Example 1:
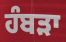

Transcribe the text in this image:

ਹੰਬੜਾ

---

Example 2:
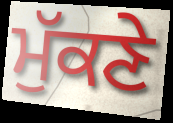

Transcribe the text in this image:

ਮੁੱਕਣੇ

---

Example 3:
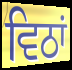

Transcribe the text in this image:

ਵਿਠਾਂ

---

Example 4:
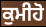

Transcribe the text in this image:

ਕੁਮੀਹੋ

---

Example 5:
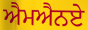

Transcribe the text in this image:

ਐਮਐਨਏ